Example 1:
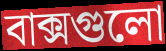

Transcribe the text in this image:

বাক্সগুলো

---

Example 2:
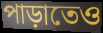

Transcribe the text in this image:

পাড়াতেও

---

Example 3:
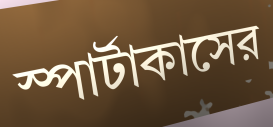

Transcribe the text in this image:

স্পার্টাকাসের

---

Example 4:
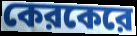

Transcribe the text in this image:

কেরকেরে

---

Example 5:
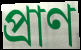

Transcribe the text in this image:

প্রাণ